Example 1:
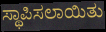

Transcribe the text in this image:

ಸ್ಥಾಪಿಸಲಾಯಿತು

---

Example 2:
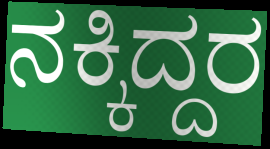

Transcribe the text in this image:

ನಕ್ಕಿದ್ದರ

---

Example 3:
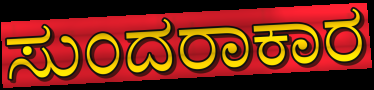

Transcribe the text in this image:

ಸುಂದರಾಕಾರ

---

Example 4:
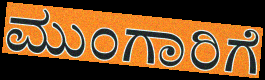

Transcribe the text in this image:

ಮುಂಗಾರಿಗೆ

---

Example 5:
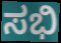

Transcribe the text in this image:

ಸಭಿ